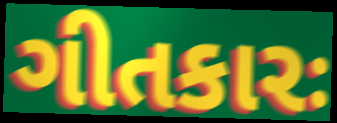
ગીતકારઃ